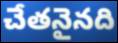
చేతనైనది